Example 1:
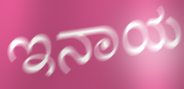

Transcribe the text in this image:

ಇನಾಯ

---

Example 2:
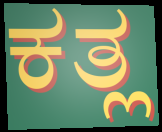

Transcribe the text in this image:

ಕತ್ಲ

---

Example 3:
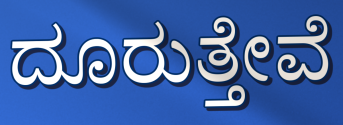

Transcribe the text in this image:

ದೂರುತ್ತೇವೆ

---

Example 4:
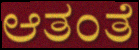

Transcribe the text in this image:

ಆತಂತೆ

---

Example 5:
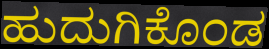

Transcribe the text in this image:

ಹುದುಗಿಕೊಂಡ